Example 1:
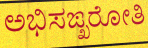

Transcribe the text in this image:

ಅಭಿಸಙ್ಖರೋತಿ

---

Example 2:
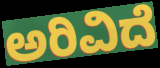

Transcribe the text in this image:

ಅರಿವಿದೆ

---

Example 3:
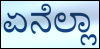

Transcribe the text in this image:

ಏನೆಲ್ಲಾ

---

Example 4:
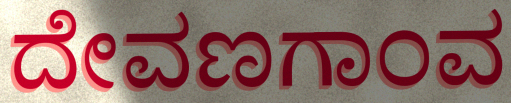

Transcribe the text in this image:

ದೇವಣಗಾಂವ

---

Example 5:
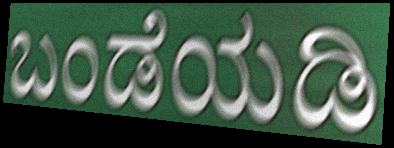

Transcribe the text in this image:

ಬಂಡೆಯಡಿ